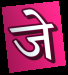
जे